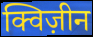
क्विज़ीन